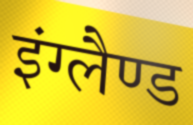
इंग्लैण्ड